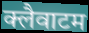
क्लैवाटम